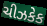
ચીઝકેક